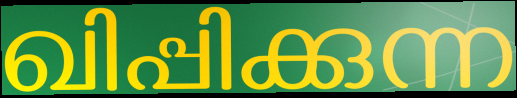
ഖിപ്പിക്കുന്ന